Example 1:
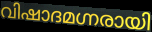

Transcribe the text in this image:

വിഷാദമഗ്നരായി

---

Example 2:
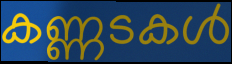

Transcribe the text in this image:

കണ്ണടകൾ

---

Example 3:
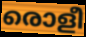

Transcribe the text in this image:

രൊളീ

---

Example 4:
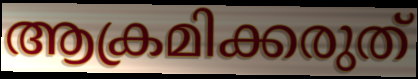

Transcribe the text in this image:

ആക്രമിക്കരുത്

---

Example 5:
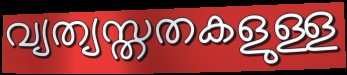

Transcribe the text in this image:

വ്യത്യസ്തതകളുള്ള